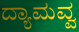
ದ್ಯಾಮವ್ವ